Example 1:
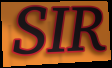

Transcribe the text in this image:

SIR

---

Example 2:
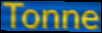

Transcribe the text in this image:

Tonne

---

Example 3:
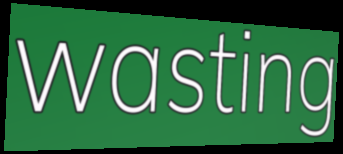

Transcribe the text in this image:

wasting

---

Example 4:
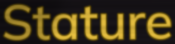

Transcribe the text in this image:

Stature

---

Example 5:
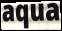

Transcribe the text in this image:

aqua